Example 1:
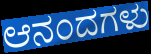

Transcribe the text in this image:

ಆನಂದಗಳು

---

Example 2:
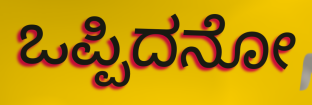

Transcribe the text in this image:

ಒಪ್ಪಿದನೋ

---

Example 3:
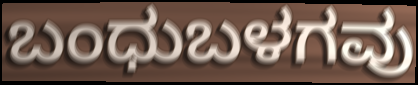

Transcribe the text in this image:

ಬಂಧುಬಳಗವು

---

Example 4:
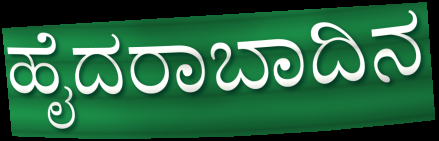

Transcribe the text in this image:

ಹೈದರಾಬಾದಿನ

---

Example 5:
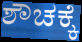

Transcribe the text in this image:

ಶೌಚಕ್ಕೆ